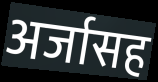
अर्जासह